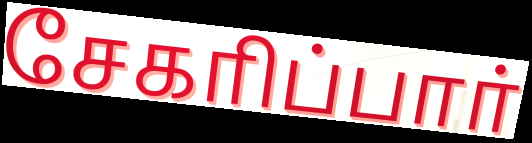
சேகரிப்பார்